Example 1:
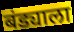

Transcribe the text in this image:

बंड्याला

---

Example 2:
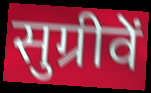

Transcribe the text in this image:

सुग्रीवें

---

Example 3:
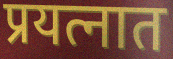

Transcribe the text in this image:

प्रयत्नात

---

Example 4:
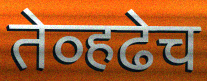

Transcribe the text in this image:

तेव्हढेच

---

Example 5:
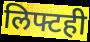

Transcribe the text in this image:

लिफ्टही